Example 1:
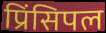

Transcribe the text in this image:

प्रिंसिपल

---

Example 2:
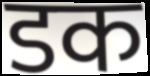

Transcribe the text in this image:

डक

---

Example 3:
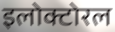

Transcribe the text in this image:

इलोक्टोरल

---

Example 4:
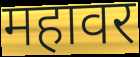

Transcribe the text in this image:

महावर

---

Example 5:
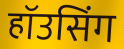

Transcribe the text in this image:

हॉउसिंग